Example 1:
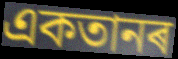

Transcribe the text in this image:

একতানৰ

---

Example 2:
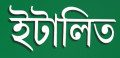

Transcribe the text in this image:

ইটালিত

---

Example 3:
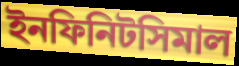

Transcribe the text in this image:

ইনফিনিটসিমাল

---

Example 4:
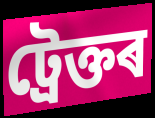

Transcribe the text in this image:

ট্ৰেক্তৰ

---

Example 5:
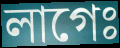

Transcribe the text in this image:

লাগেঃ